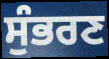
ਸੁੰਭਰਣ